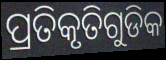
ପ୍ରତିକୃତିଗୁଡିକ